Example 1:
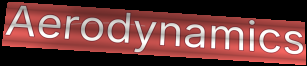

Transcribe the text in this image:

Aerodynamics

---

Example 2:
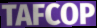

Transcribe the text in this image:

TAFCOP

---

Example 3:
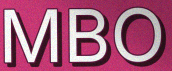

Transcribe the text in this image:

MBO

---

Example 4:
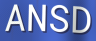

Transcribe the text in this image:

ANSD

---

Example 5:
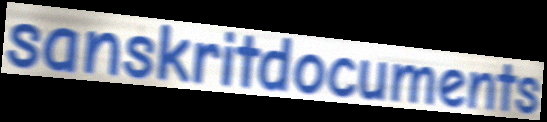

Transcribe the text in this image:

sanskritdocuments